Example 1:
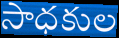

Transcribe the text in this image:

సాధకుల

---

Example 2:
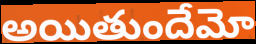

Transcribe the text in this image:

అయితుందేమో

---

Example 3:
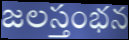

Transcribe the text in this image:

జలస్తంభన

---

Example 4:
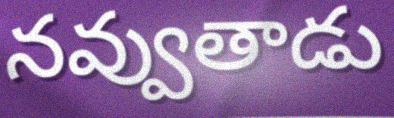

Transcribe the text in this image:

నవ్వుతాడు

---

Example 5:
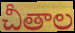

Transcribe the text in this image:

చీతాల